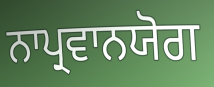
ਨਾਪ੍ਰਵਾਨਯੋਗ